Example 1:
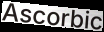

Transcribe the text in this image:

Ascorbic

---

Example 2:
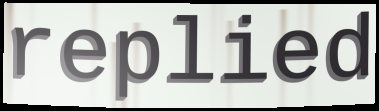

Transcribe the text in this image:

replied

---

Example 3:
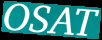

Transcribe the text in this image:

OSAT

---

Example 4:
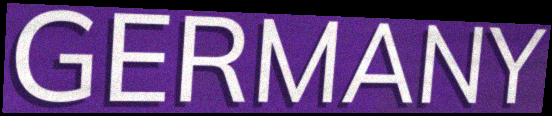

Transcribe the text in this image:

GERMANY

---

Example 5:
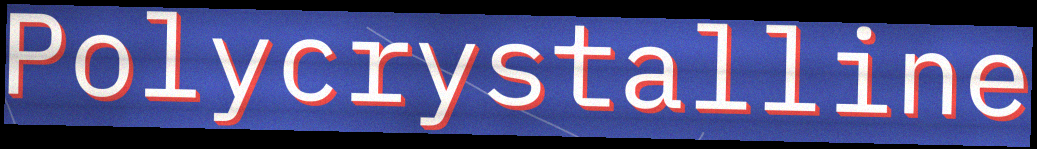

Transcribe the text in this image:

Polycrystalline